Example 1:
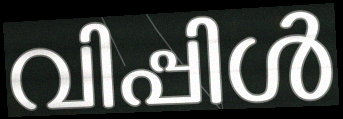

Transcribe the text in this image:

വിപ്പിൾ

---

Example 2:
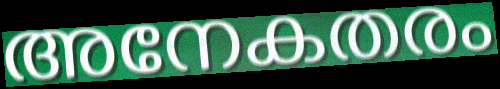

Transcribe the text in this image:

അനേകതരം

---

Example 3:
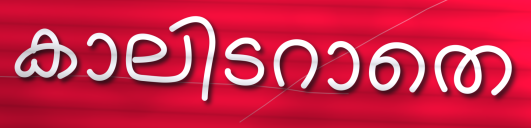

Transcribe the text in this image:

കാലിടറാതെ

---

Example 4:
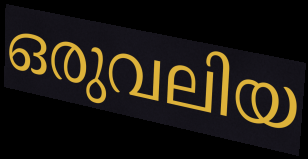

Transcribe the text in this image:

ഒരുവലിയ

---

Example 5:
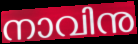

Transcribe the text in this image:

നാവിനു